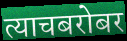
त्याचबरोबर